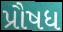
પ્રૌષધ